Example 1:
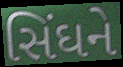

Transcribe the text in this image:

સિંઘને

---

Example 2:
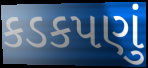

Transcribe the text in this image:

કડકપણું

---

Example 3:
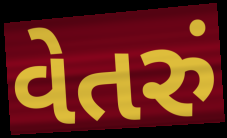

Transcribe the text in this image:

વેતરું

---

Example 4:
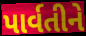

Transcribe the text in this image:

પાર્વતીને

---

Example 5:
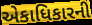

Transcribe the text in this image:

એકાધિકારની